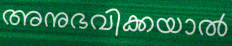
അനുഭവിക്കയാൽ